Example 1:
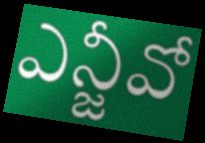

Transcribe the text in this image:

ఎన్జీవో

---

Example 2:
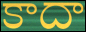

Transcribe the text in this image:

కాదా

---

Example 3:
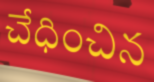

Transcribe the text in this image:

చేధించిన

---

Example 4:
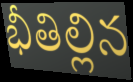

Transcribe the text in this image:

భీతిల్లిన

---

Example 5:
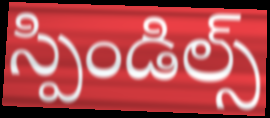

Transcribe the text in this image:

స్పిండిల్స్